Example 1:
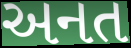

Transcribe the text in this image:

અનત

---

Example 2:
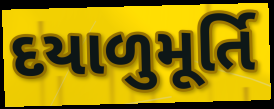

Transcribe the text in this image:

દયાળુમૂર્તિ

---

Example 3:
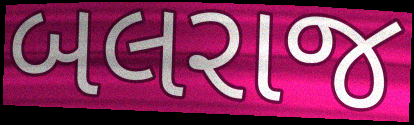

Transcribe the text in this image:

બલરાજ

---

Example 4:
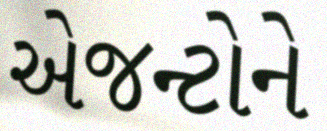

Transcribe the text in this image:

એજન્ટોને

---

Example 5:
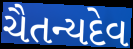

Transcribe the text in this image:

ચૈતન્યદેવ